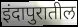
इंदापुरातील